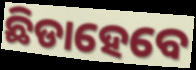
ଛିଡାହେବେ